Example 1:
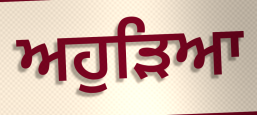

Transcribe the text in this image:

ਅਹੁੜਿਆ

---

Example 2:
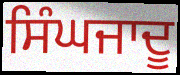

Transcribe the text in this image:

ਸਿੰਘਜਾਦੂ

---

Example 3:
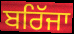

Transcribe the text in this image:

ਬਰਿੱਜਾ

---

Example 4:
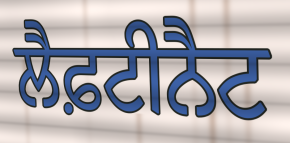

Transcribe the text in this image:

ਲੈਫ਼ਟੀਨੈਟ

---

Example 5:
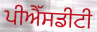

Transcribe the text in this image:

ਪੀਐੱਸਡੀਟੀ